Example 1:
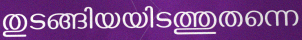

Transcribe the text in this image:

തുടങ്ങിയയിടത്തുതന്നെ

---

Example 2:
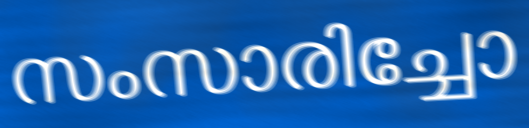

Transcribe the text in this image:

സംസാരിച്ചോ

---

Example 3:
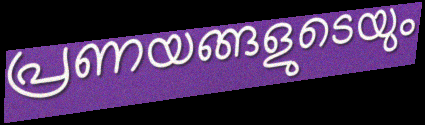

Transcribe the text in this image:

പ്രണയങ്ങളുടെയും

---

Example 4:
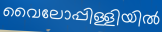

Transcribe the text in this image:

വൈലോപ്പിള്ളിയിൽ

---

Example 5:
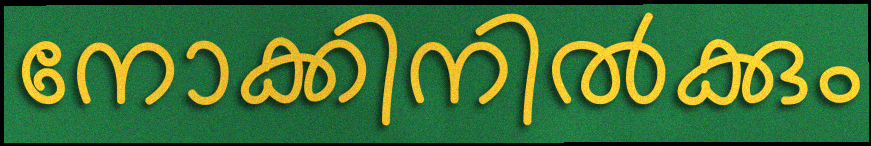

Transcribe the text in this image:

നോക്കിനിൽക്കും